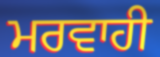
ਮਰਵਾਹੀ